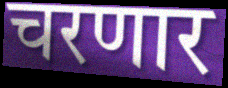
चरणार